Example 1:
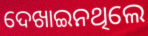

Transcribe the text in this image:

ଦେଖାଇନଥିଲେ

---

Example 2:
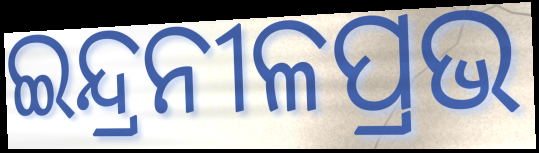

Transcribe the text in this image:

ଇନ୍ଦ୍ରନୀଳପ୍ରଭ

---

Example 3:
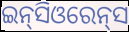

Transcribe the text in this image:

ଇନ୍‌ସିଓରେନ୍‌ସ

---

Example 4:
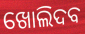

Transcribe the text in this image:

ଖୋଲିଦବ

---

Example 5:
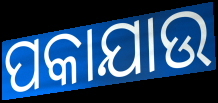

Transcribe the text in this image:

ପକାଯାଉ